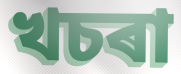
খচৰা